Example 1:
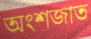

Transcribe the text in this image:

অংশজাত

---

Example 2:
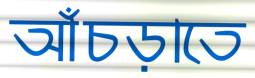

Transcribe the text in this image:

আঁচড়াতে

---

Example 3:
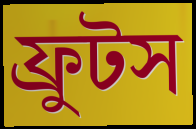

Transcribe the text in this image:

ফ্রুটস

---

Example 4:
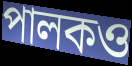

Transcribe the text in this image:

পালকও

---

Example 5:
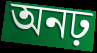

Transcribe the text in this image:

অনঢ়